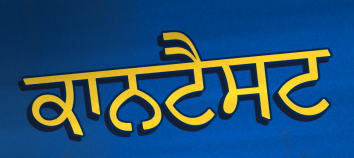
ਕਾਨਟੈਸਟ